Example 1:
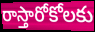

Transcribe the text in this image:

రాస్తారోకోలకు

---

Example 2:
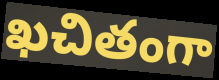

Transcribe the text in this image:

ఖచితంగా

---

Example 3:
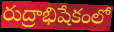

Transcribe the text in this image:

రుద్రాభిషేకంలో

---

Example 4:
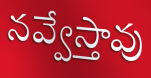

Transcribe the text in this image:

నవ్వేస్తావు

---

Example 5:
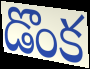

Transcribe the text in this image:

డొంక